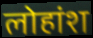
लोहांश